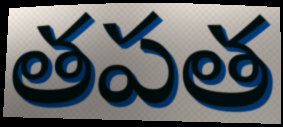
తపత